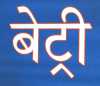
बेट्री